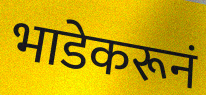
भाडेकरूनं